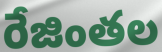
రేజింతల